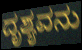
ದೃಶ್ಯವನು